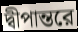
দ্বীপান্তরে